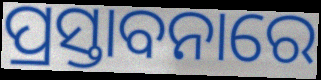
ପ୍ରସ୍ତାବନାରେ